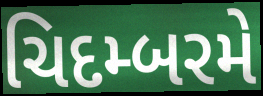
ચિદમ્બરમે